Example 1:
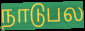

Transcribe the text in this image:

நாடுபல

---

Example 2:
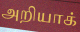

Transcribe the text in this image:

அறியாக்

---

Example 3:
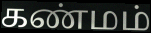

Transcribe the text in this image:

கண்மம்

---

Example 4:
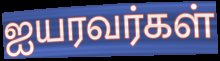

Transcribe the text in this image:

ஐயரவர்கள்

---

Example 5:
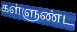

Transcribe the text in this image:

கள்ளுண்ட